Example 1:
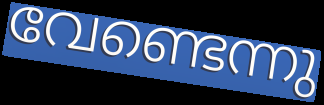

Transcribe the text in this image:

വേണ്ടെന്നു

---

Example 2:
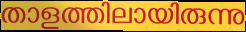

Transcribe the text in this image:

താളത്തിലായിരുന്നു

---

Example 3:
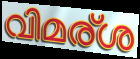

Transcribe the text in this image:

വിമര്ശ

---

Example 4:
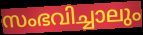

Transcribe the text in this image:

സംഭവിച്ചാലും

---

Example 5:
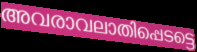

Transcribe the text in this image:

അവരാവലാതിപ്പെടട്ടെ